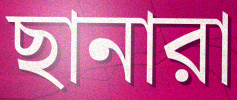
ছানারা